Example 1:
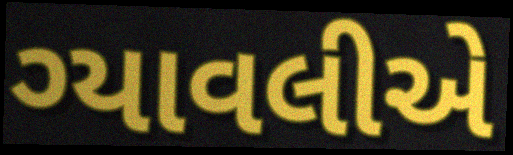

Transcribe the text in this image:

ગ્યાવલીએ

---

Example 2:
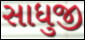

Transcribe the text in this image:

સાધુજી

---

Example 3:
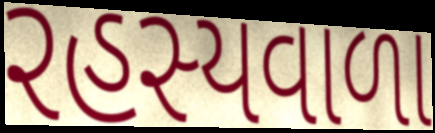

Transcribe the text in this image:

રહસ્યવાળા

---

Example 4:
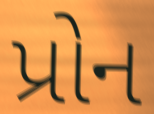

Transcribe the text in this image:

પ્રોન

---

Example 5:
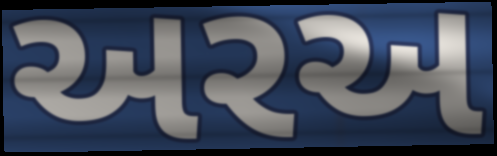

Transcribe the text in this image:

અરઅ